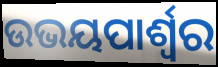
ଉଭୟପାର୍ଶ୍ୱର